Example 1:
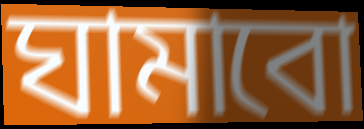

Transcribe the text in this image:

ঘামাবো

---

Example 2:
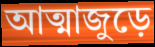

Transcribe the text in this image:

আত্মাজুড়ে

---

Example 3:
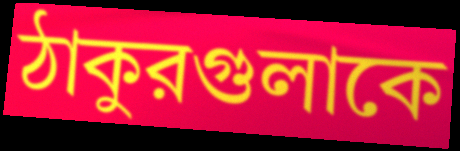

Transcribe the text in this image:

ঠাকুরগুলাকে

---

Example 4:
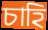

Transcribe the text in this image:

চাহি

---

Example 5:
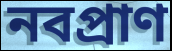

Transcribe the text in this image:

নবপ্রাণ